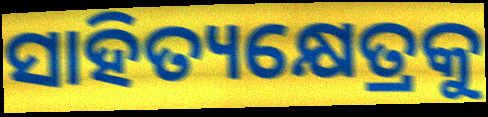
ସାହିତ୍ୟକ୍ଷେତ୍ରକୁ